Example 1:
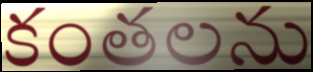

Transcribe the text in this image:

కంతలను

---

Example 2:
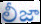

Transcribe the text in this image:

లీజా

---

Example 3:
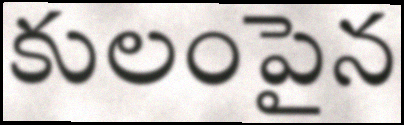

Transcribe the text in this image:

కులంపైన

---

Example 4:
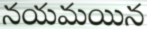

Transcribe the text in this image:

నయమయిన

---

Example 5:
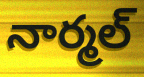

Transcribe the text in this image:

నార్మల్